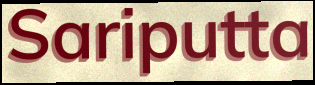
Sariputta